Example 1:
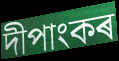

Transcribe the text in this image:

দীপাংকৰ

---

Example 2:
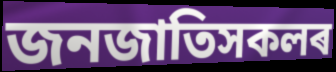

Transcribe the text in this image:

জনজাতিসকলৰ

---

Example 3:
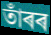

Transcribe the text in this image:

তাঁৰৰ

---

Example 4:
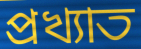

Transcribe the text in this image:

প্ৰখ্যাত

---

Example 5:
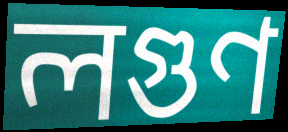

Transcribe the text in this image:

লগুণ